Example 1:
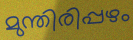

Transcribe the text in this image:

മുന്തിരിപ്പഴം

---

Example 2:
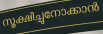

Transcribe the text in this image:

സൂക്ഷിച്ചുനോക്കാൻ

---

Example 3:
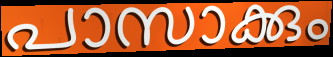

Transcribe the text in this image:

പാസാക്കും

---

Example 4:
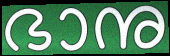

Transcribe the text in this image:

ഭാനു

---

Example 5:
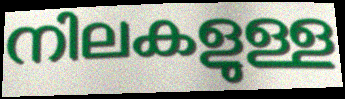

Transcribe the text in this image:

നിലകളുള്ള